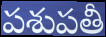
పశుపతీ